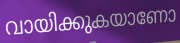
വായിക്കുകയാണോ